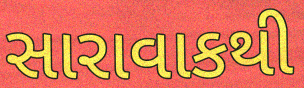
સારાવાકથી